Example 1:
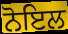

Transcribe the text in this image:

ਨੋਇਲ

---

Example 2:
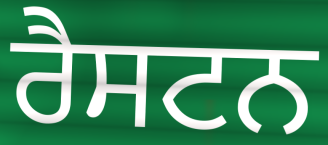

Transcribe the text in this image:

ਰੈਸਟਨ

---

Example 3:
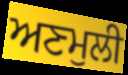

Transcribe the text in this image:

ਅਣਮੁਲੀ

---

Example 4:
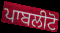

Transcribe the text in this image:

ਪਾਬਲੀਟੋ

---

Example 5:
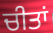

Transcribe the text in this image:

ਚੀਤਾਂ